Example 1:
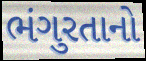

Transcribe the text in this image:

ભંગુરતાનો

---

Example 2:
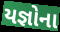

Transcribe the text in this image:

યજ્ઞોના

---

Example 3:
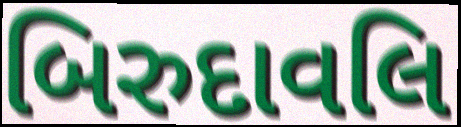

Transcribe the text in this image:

બિરુદાવલિ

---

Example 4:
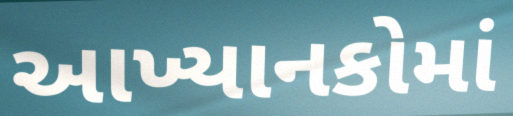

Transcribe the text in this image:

આખ્યાનકોમાં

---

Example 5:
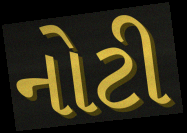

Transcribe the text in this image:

નોટી